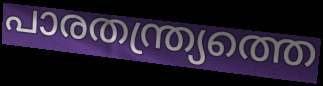
പാരതന്ത്ര്യത്തെ